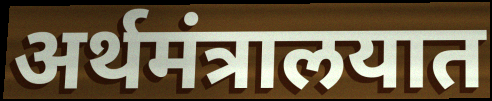
अर्थमंत्रालयात